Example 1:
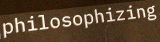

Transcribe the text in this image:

philosophizing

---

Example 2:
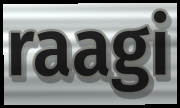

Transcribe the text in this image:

raagi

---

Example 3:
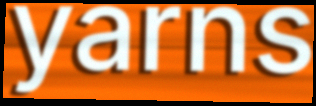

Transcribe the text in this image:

yarns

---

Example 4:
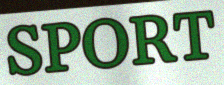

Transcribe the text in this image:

SPORT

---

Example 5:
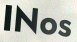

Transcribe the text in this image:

INos